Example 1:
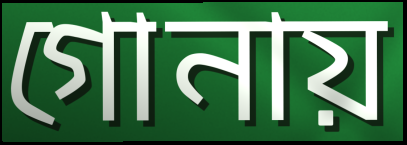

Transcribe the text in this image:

গোনায়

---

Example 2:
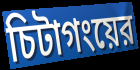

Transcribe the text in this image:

চিটাগংয়ের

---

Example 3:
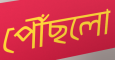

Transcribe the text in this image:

পৌঁছলো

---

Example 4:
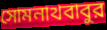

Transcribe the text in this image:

সোমনাথবাবুর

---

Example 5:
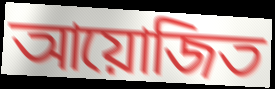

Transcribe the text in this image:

আয়োজিত